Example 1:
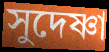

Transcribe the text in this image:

সুদেষ্ণা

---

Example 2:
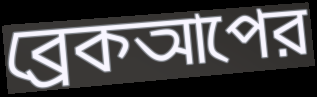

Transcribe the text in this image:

ব্রেকআপের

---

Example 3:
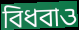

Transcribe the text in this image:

বিধবাও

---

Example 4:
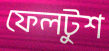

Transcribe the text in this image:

ফেলটুশ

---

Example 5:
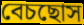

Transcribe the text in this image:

বেচছোস